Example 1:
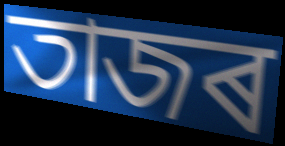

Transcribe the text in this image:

তাজৰ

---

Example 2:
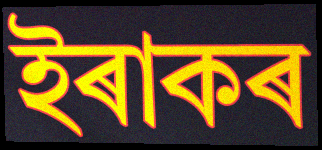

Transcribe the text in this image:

ইৰাকৰ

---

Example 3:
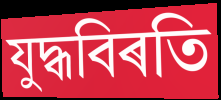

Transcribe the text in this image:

যুদ্ধবিৰতি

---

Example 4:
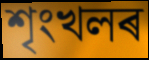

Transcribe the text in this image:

শৃংখলৰ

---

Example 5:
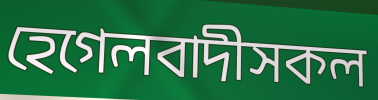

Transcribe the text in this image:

হেগেলবাদীসকল